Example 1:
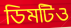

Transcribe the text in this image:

ডিমটিও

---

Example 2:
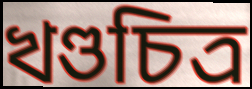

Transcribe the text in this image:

খণ্ডচিত্র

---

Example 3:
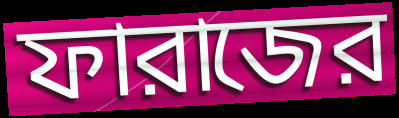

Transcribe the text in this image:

ফারাজের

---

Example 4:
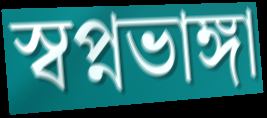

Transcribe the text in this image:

স্বপ্নভাঙ্গা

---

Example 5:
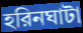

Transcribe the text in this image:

হরিনঘাটা